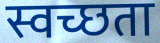
स्वच्छता